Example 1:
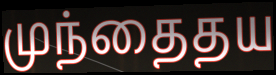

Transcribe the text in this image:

முந்தைதய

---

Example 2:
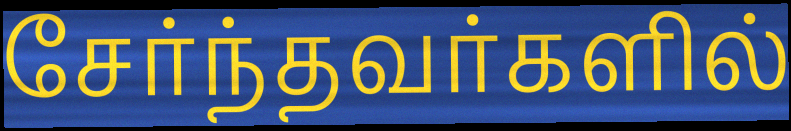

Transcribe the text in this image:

சேர்ந்தவர்களில்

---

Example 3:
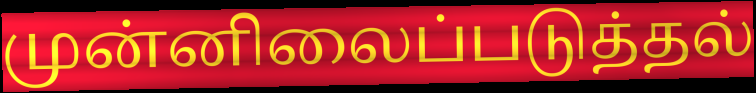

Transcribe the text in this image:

முன்னிலைப்படுத்தல்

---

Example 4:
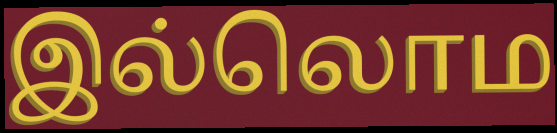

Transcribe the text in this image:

இல்லொம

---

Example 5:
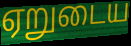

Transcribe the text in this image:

ஏறுடைய